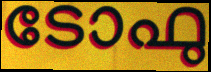
ടോഫു